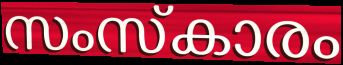
സംസ്‌കാരം